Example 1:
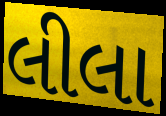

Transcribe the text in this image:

લીલા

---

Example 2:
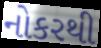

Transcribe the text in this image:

નોકરથી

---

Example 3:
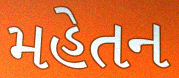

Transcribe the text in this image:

મહેતન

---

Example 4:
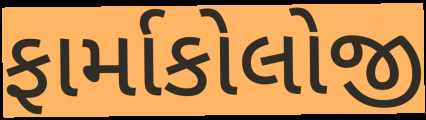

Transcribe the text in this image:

ફાર્માકોલોજી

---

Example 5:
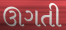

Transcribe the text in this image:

ઊગતી